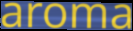
aroma